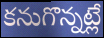
కనుగొన్నట్లే